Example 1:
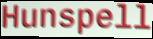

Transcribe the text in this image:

Hunspell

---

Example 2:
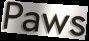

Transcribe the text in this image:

Paws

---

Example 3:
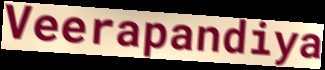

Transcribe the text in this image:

Veerapandiya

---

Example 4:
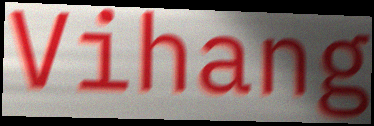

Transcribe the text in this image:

Vihang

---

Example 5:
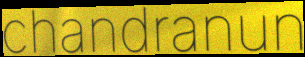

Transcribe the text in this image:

chandranun